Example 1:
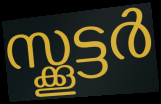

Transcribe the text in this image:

സ്ക്കൂട്ടർ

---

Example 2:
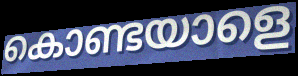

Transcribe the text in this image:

കൊണ്ടയാളെ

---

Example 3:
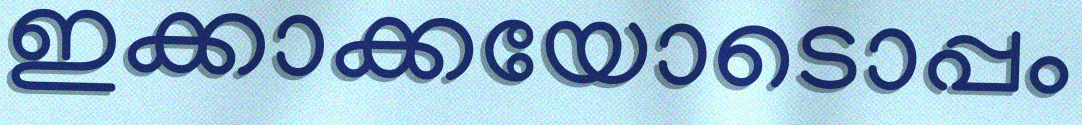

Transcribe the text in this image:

ഇക്കാക്കയോടൊപ്പം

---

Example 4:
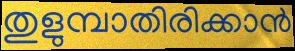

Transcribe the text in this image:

തുളുമ്പാതിരിക്കാൻ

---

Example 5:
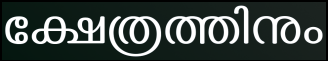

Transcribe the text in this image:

ക്ഷേത്രത്തിനും